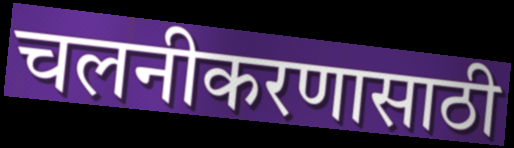
चलनीकरणासाठी